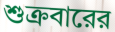
শুক্রবারের